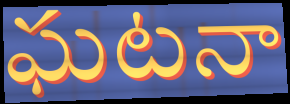
ఘటనా